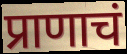
प्राणाचं